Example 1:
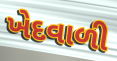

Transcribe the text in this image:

ખેદવાળી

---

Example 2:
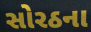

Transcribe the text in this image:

સોરઠના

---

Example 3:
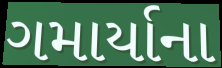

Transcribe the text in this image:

ગમાર્યાના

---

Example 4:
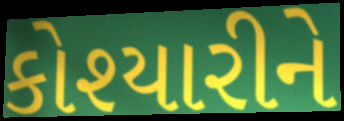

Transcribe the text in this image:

કોશ્યારીને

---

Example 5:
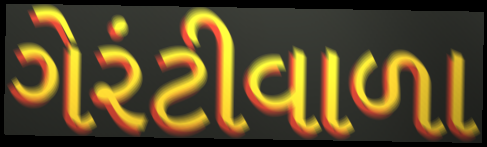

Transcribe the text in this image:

ગેરંટીવાળા